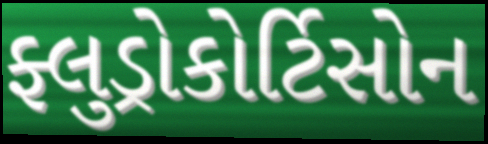
ફ્લુડ્રોકોર્ટિસોન